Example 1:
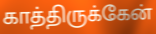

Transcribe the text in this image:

காத்திருக்கேன்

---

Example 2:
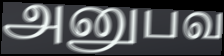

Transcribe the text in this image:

அனுபவ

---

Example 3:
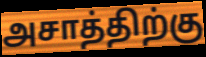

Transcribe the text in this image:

அசாத்திற்கு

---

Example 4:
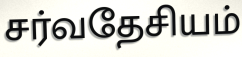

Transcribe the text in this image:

சர்வதேசியம்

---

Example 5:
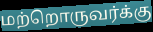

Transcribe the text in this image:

மற்றொருவர்க்கு